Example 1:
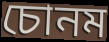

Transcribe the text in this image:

চোনম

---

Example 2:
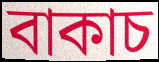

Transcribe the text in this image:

বাকাচ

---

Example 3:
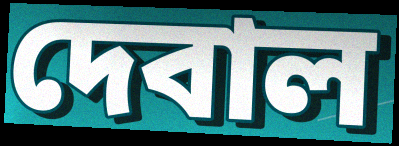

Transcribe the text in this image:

দেবাল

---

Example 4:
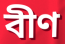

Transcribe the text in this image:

বীণ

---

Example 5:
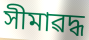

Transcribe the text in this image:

সীমাৱদ্ধ